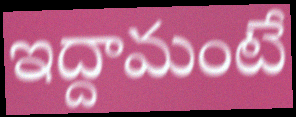
ఇద్దామంటే